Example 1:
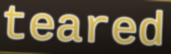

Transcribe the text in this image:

teared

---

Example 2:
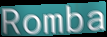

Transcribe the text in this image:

Romba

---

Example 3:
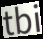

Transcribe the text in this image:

tbi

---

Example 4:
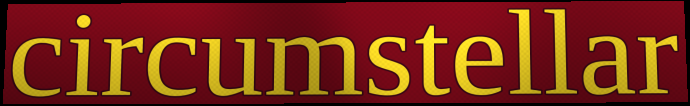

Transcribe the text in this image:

circumstellar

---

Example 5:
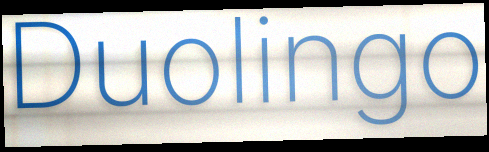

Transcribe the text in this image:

Duolingo